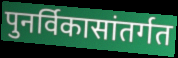
पुनर्विकासांतर्गत